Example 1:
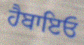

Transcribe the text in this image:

ਹੈਬਾਇਓ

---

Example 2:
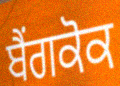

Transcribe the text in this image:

ਬੈਂਗਕੋਕ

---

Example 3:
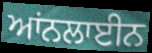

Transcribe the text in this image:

ਆਂਨਲਾਈਨ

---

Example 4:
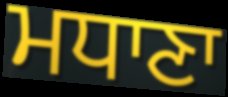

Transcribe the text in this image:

ਮਧਾਣਾ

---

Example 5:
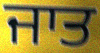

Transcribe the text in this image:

ਜਾਤ